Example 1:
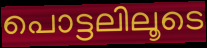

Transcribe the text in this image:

പൊട്ടലിലൂടെ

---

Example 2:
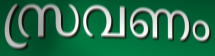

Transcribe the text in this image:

സ്രവണം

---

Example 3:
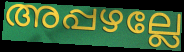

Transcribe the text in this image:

അപ്പഴല്ലേ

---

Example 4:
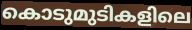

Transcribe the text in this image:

കൊടുമുടികളിലെ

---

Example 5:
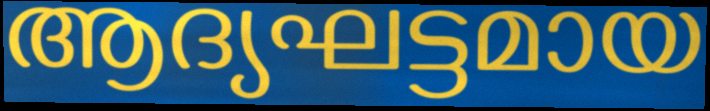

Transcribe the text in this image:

ആദ്യഘട്ടമായ